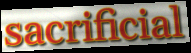
sacrificial